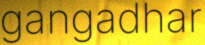
gangadhar